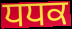
ਧਧਕ